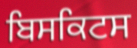
ਬਿਸਕਿਟਸ